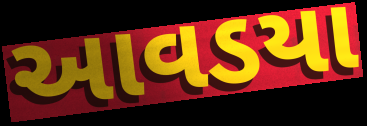
આવડયા